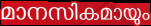
മാനസികമായും